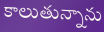
కాలుతున్నాను